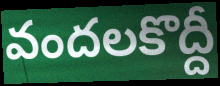
వందలకొద్దీ